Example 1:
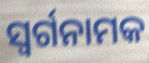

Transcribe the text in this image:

ସ୍ଵର୍ଗନାମକ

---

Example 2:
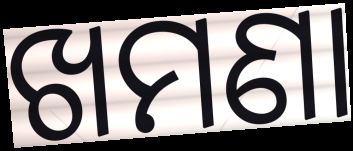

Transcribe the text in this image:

ଖମଣା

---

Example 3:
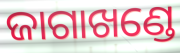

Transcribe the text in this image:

ଜାଗାଖଣ୍ଡେ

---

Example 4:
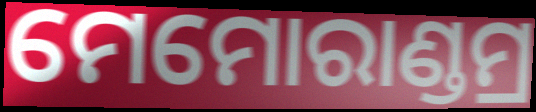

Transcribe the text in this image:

ମେମୋରାଣ୍ଡମ୍ର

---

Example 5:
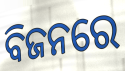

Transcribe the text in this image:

ବିଜନରେ